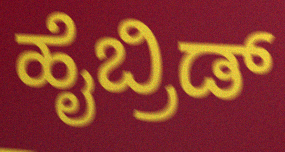
ಹೈಬ್ರಿಡ್